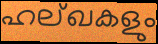
ഹല്ഖകളും